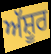
ਅੱਸ਼ੂਰ